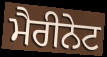
ਮੈਰੀਨੇਟ